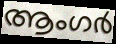
ആംഗർ